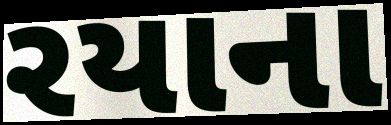
રયાના